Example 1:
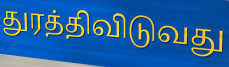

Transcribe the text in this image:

துரத்திவிடுவது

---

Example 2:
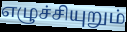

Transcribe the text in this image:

எழுச்சியுறும்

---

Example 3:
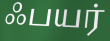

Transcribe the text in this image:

ஃபயர்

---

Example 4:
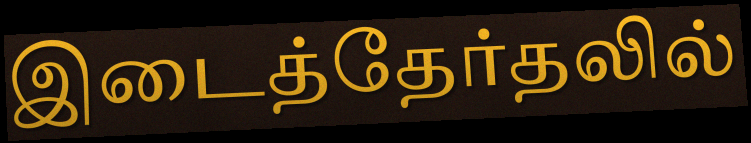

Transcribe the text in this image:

இடைத்தேர்தலில்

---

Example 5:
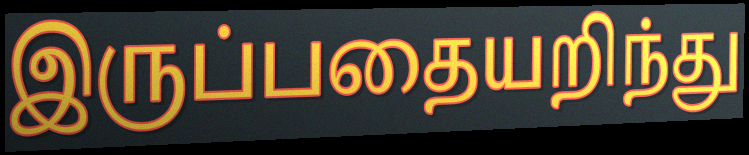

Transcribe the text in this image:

இருப்பதையறிந்து